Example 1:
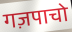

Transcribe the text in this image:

गज़पाचो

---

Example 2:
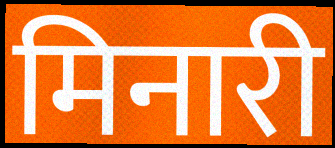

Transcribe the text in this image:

मिनारी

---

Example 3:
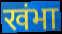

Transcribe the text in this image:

खंभा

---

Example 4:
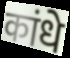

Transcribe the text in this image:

कांधे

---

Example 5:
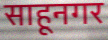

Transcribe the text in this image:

साहूनगर